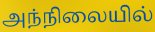
அந்நிலையில்